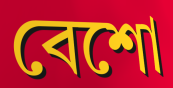
বেশো